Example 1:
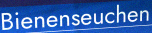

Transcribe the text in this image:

Bienenseuchen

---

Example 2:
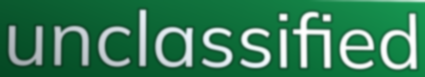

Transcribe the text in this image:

unclassified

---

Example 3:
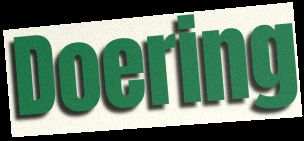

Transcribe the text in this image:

Doering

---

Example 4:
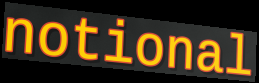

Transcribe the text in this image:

notional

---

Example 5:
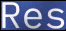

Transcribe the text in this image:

Res